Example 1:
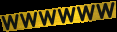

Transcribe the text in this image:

wwwwww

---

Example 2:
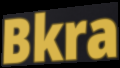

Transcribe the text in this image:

Bkra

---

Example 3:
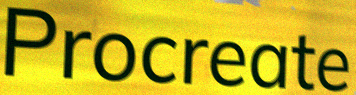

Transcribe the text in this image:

Procreate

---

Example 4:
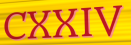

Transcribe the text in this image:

CXXIV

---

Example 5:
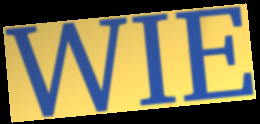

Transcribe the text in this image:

WIE